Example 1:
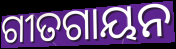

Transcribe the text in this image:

ଗୀତଗାୟନ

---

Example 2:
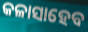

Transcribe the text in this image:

କଳାସାହେବ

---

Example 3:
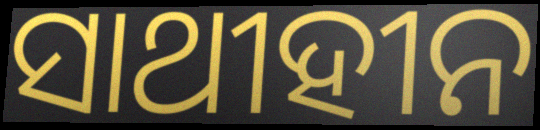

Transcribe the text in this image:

ସାଥୀହୀନ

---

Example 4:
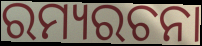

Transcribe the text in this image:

ରମ୍ୟରଚନା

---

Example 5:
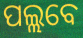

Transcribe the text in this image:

ପଲ୍ଲବେ